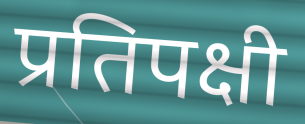
प्रतिपक्षी